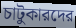
চাটুকারদের